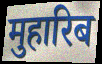
मुहारिब